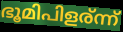
ഭൂമിപിളര്ന്ന്